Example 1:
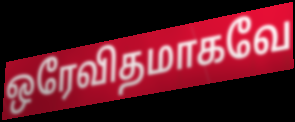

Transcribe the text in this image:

ஒரேவிதமாகவே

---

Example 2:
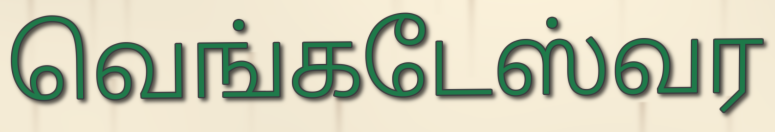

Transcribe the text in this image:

வெங்கடேஸ்வர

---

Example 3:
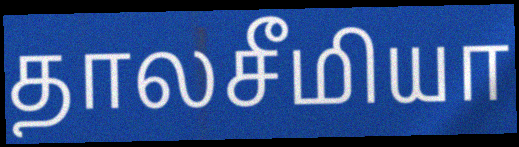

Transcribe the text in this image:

தாலசீமியா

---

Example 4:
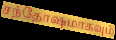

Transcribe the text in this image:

சந்தோஷமாகவும்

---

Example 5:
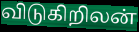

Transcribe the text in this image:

விடுகிறிலன்